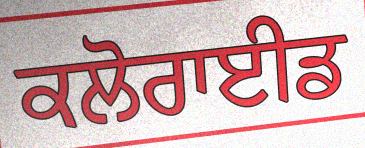
ਕਲੋਰਾਈਡ